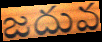
జదువ